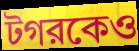
টগরকেও